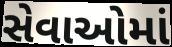
સેવાઓમાં